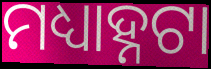
ମଧ୍ୟାହ୍ନଟା